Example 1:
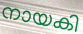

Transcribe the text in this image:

നായകി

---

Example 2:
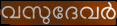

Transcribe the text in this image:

വസുദേവർ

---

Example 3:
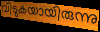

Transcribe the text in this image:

വിടുകയായിരുന്നു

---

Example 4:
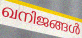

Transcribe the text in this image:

ഖനിജങ്ങൾ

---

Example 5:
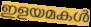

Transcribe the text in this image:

ഇളയമകൾ